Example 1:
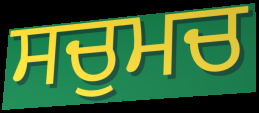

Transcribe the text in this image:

ਸਚੁਮਚ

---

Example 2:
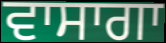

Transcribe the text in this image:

ਵਾਸਾਗਾ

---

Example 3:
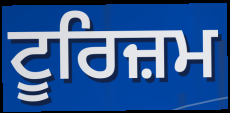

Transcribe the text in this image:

ਟੂਰਿਜ਼ਮ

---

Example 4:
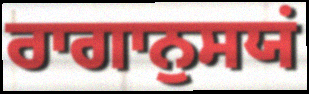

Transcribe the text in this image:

ਰਾਗਾਨੁਸਯਂ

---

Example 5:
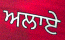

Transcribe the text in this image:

ਅਲਾਏ